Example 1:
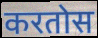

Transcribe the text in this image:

करतोस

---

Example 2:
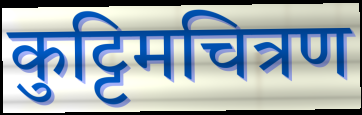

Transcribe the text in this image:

कुट्टिमचित्रण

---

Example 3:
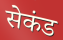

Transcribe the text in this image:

सेकंड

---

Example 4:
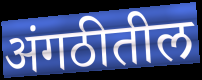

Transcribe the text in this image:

अंगठीतील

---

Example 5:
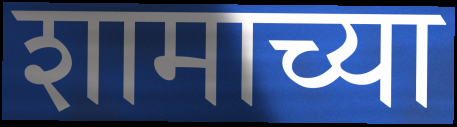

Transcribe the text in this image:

शामाच्या